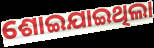
ଶୋଇଯାଇଥିଲା